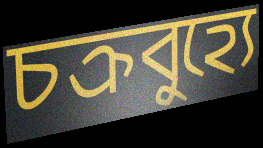
চক্রবুহ্যে